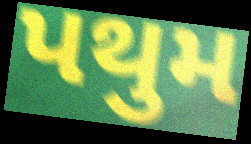
પથુમ